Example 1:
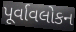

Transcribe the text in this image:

પૂર્વાવલોકન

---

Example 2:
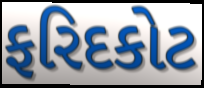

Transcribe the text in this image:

ફરિદકોટ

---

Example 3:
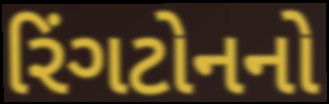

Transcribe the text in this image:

રિંગટોનનો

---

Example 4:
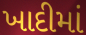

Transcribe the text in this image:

ખાદીમાં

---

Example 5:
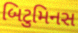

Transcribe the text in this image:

બિટુમિનસ